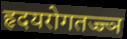
हृदयरोगतज्ज्ञ